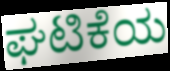
ಘಟಿಕೆಯ